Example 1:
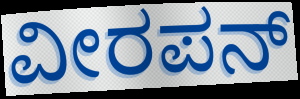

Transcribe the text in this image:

ವೀರಪನ್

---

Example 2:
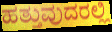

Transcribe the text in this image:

ಹತ್ತುವುದರಲ್ಲಿ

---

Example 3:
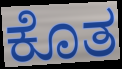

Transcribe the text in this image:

ಕೊತ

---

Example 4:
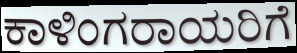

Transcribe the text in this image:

ಕಾಳಿಂಗರಾಯರಿಗೆ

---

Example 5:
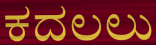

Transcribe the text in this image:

ಕದಲಲು